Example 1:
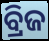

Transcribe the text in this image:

ବ୍ରିଜ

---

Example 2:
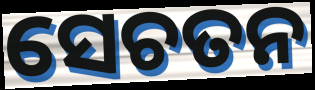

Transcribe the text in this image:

ସେଚତନ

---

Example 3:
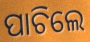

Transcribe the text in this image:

ପାଚିଲେ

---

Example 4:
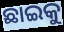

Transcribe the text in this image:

ଛାଇକୁ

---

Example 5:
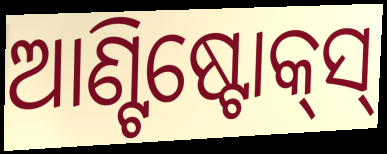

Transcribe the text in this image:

ଆଣ୍ଟିଷ୍ଟୋକ୍‍ସ୍